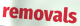
removals